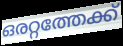
ഒരറ്റത്തേക്ക്